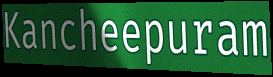
Kancheepuram